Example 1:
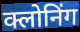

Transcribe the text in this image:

क्लोनिंग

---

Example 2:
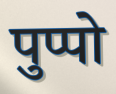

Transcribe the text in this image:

पुप्पो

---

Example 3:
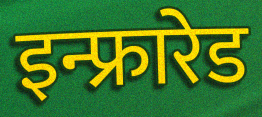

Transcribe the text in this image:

इन्फ्रारेड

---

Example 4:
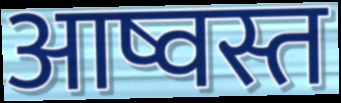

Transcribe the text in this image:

आष्वस्त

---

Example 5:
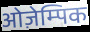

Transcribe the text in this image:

ओज़ेम्पिक